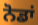
ਨੋਡਾਂ